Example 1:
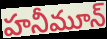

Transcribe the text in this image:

హనీమూన్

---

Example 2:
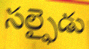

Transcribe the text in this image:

సల్ఫైడు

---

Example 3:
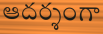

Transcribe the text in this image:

ఆదర్శంగా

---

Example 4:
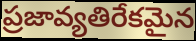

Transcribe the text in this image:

ప్రజావ్యతిరేకమైన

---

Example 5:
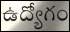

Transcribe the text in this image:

ఉద్యోగం